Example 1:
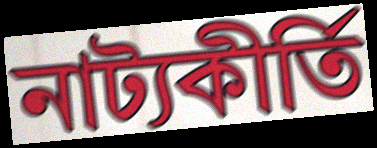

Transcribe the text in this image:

নাট্যকীর্তি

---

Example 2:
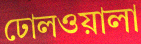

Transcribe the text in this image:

ঢোলওয়ালা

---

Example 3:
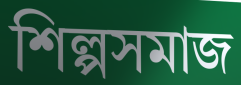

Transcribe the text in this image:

শিল্পসমাজ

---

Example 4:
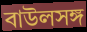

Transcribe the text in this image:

বাউলসঙ্গ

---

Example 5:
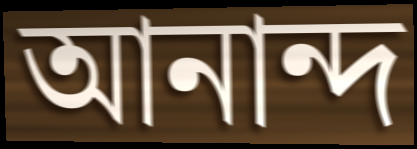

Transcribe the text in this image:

আনান্দ